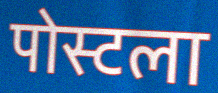
पोस्टला